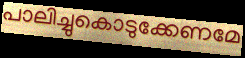
പാലിച്ചുകൊടുക്കേണമേ